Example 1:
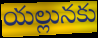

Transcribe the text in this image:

యల్లునకు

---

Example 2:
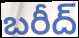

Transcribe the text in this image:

బరీద్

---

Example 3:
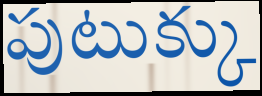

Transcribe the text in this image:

పుటుక్కు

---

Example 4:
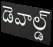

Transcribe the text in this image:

డెవాల్డ్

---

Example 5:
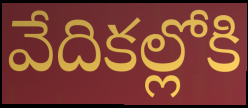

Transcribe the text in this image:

వేదికల్లోకి